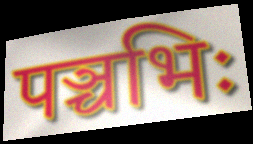
पञ्चभिः